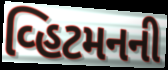
વ્હિટમનની